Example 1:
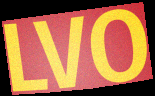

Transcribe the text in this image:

LVO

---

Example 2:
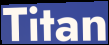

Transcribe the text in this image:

Titan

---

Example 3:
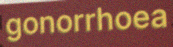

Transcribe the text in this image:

gonorrhoea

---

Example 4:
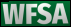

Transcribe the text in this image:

WFSA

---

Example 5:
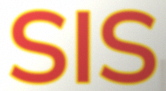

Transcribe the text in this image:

SIS